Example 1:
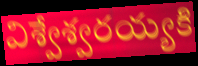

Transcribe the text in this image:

విశ్వేశ్వరయ్యకి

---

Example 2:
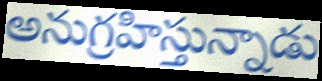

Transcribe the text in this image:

అనుగ్రహిస్తున్నాడు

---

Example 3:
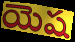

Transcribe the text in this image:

యెష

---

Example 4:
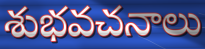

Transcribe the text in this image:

శుభవచనాలు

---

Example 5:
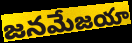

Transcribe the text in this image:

జనమేజయా